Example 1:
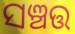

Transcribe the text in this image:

ସଞ୍ଚତ୍ତ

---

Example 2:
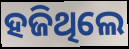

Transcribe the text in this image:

ହଜିଥିଲେ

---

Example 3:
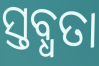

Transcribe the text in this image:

ସ୍ତବ୍ଧତା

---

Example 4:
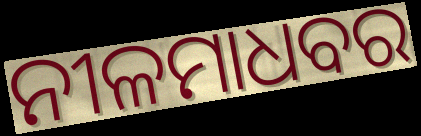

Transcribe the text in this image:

ନୀଳମାଧବର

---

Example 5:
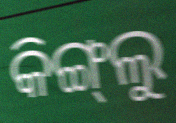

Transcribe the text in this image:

କିଙ୍ଗ୍‌ଲୁ